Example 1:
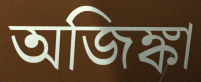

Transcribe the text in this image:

অজিঙ্কা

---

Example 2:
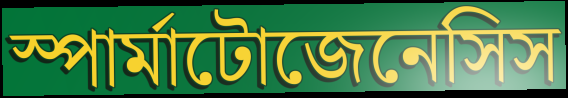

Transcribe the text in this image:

স্পার্মাটোজেনেসিস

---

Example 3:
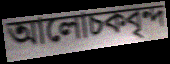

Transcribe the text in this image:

আলোচকবৃন্দ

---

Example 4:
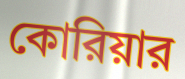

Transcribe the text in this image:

কোরিয়ার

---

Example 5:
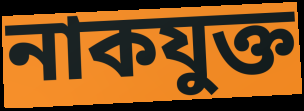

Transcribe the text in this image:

নাকযুক্ত